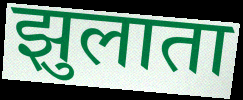
झुलाता